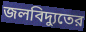
জলবিদ্যুতের